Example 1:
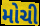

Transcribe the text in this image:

મોચી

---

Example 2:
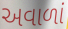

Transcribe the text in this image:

અવાળાં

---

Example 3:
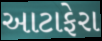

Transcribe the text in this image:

આટાફેરા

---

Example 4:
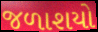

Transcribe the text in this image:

જળાશયો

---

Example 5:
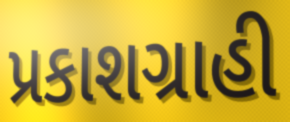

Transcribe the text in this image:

પ્રકાશગ્રાહી